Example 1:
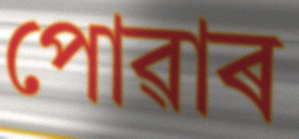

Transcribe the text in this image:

পোৱাৰ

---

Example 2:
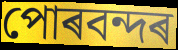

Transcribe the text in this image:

পোৰবন্দৰ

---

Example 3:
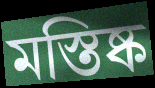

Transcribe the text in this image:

মস্তিষ্ক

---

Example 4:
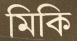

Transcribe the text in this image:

মিকি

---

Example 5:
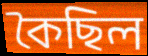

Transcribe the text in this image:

কৈছিল